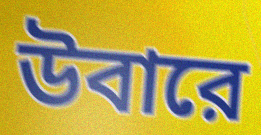
উবারে